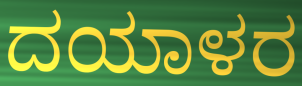
ದಯಾಳರ